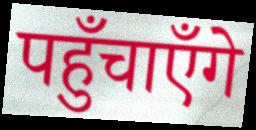
पहुँचाएँगे